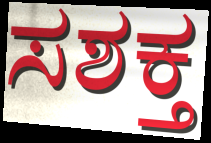
ಸಶಕ್ತ